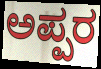
ಅಪ್ಪರ